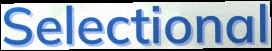
Selectional